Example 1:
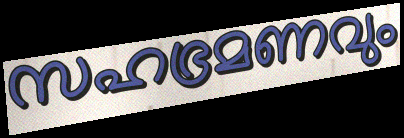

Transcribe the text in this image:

സഹഭ്രമണവും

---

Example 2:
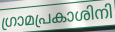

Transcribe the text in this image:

ഗ്രാമപ്രകാശിനി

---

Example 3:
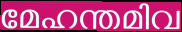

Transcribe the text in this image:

മേഹന്തമിവ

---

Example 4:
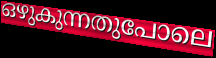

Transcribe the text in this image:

ഒഴുകുന്നതുപോലെ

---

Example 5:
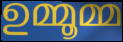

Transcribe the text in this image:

ഉമ്മൂമ്മ